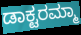
ಡಾಕ್ಟರಮ್ಮಾ